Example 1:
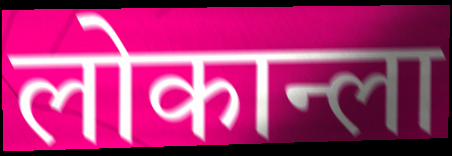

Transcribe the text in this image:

लोकान्ला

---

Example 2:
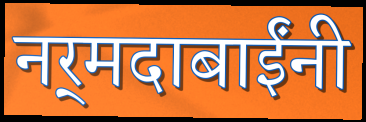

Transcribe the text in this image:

नर्मदाबाईंनी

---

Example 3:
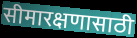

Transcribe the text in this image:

सीमारक्षणासाठी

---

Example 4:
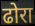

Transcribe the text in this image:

ढोरा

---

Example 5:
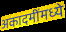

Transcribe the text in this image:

अकादमींमध्ये